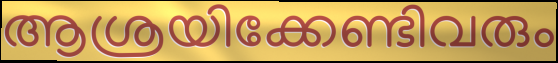
ആശ്രയിക്കേണ്ടിവരും